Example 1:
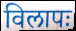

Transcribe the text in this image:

विलापः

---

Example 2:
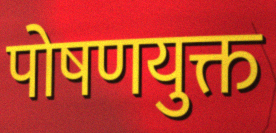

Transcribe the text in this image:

पोषणयुक्त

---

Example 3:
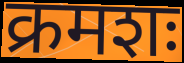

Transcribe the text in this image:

क्रमशः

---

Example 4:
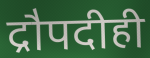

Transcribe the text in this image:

द्रौपदीही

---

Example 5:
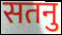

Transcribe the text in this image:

सतनु